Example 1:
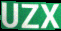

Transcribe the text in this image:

UZX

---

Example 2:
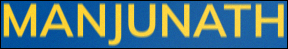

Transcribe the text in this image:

MANJUNATH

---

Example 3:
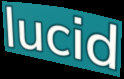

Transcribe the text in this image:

lucid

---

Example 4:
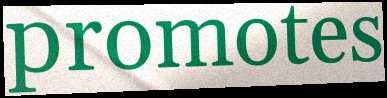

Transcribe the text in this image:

promotes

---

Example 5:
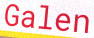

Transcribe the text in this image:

Galen